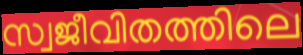
സ്വജീവിതത്തിലെ